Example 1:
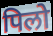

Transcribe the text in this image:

पिलो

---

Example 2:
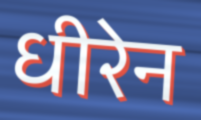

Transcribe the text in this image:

धीरेन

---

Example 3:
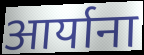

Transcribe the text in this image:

आर्याना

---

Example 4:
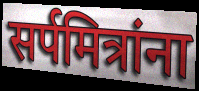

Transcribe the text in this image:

सर्पमित्रांना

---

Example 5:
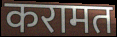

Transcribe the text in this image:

करामत